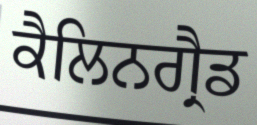
ਕੈਲਿਨਗ੍ਰੈਡ